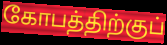
கோபத்திற்குப்